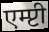
एम्प्टी